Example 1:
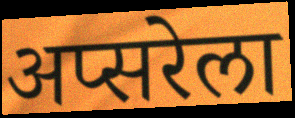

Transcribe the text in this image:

अप्सरेला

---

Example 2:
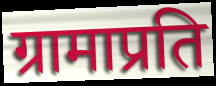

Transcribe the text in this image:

ग्रामाप्रति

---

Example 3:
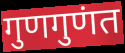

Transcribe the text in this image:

गुणगुणंत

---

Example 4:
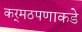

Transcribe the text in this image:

कर्मठपणाकडे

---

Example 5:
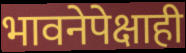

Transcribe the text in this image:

भावनेपेक्षाही